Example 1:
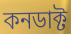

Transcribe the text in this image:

কনডাক্ট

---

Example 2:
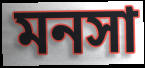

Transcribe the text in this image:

মনসা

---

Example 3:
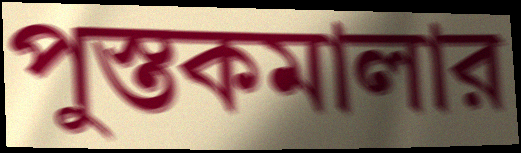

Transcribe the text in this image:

পুস্তকমালার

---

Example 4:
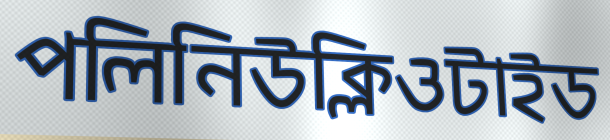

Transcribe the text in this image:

পলিনিউক্লিওটাইড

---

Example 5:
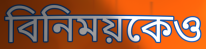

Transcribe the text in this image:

বিনিময়কেও